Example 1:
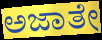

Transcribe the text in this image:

ಅಜಾತೇ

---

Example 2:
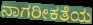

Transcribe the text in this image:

ನಾಗರೀಕತೆಯ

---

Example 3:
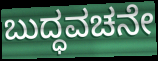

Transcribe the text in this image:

ಬುದ್ಧವಚನೇ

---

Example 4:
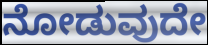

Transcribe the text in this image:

ನೋಡುವುದೇ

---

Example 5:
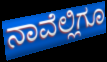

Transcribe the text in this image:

ನಾವೆಲ್ಲಿಗೂ